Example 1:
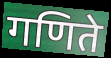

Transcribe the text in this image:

गणिते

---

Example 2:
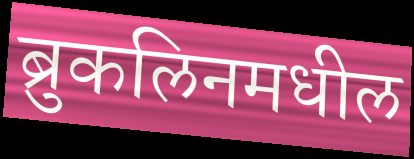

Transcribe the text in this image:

ब्रुकलिनमधील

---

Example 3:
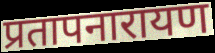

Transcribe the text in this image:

प्रतापनारायण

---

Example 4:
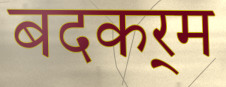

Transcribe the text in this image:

बदकर्म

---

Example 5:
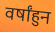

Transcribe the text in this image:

वर्षांहुन